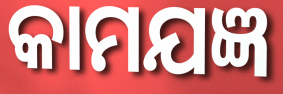
କାମଯଜ୍ଞ